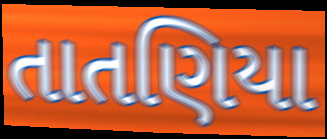
તાતણિયા